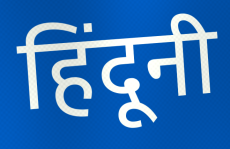
हिंदूनी